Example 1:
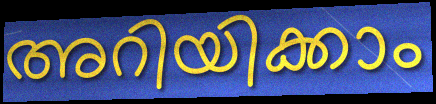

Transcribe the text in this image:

അറിയിക്കാം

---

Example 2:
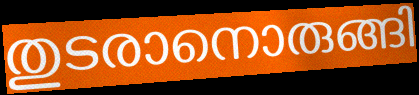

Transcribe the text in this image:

തുടരാനൊരുങ്ങി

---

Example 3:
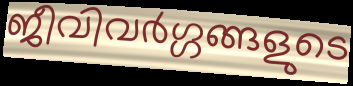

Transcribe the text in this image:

ജീവിവർഗ്ഗങ്ങളുടെ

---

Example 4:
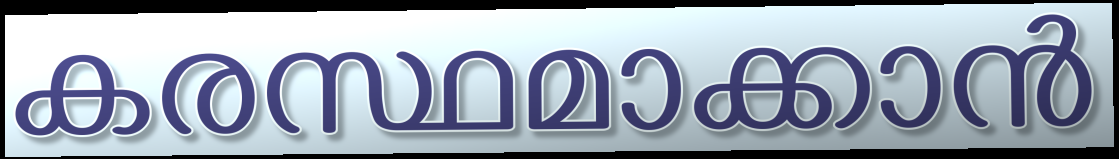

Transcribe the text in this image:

കരസ്ഥമാക്കാൻ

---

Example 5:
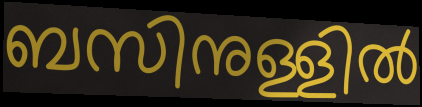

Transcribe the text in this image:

ബസിനുള്ളിൽ